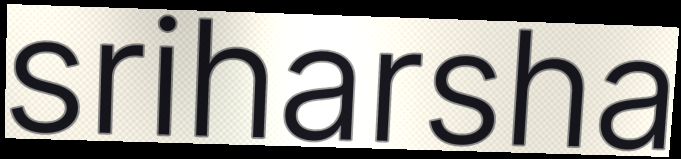
sriharsha